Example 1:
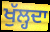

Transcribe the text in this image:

ਖੁੱਲ੍ਹਦਾ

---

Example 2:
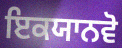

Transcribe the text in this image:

ਇਕਯਾਨਵੋ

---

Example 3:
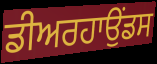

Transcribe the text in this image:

ਡੀਅਰਹਾਉਂਡਸ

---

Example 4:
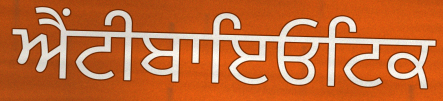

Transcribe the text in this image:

ਐਂਟੀਬਾਇਓਟਿਕ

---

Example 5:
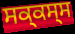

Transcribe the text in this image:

ਸਕ੍ਕਸ੍ਸ